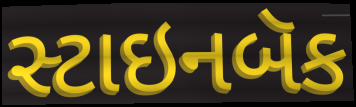
સ્ટાઇનબૅક